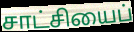
சாட்சியைப்